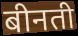
बीनती